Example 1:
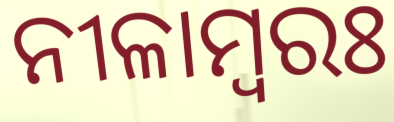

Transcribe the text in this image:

ନୀଳାମ୍ବରଃ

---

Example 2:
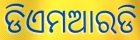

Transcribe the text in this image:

ଡିଏମଆରଡି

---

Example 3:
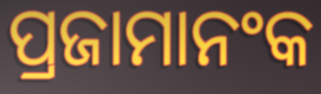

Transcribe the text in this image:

ପ୍ରଜାମାନଂକ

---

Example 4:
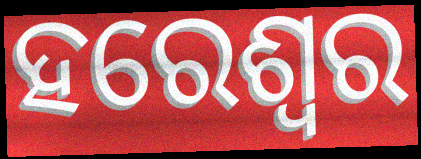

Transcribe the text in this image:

ହରେଶ୍ୱର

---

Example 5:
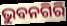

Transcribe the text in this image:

ଭୁବନଗିରି